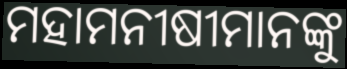
ମହାମନୀଷୀମାନଙ୍କୁ